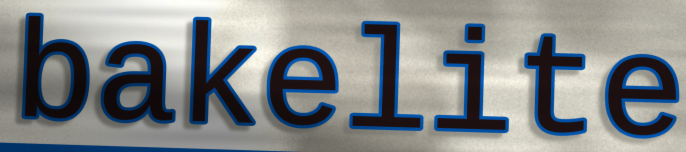
bakelite